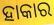
ହାକାର